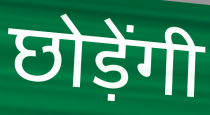
छोड़ेंगी